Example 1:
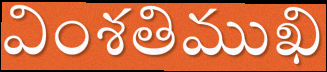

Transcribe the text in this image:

వింశతిముఖి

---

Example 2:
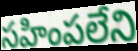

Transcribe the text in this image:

సహింపలేని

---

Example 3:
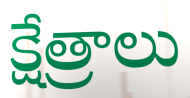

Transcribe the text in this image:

క్షేత్రాలు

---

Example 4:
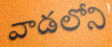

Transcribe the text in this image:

వాడలోని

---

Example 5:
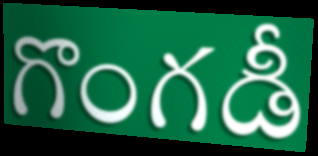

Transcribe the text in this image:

గొంగడీ